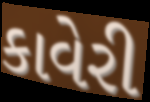
કાવેરી